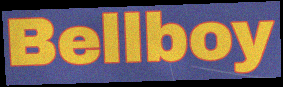
Bellboy